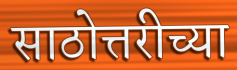
साठोत्तरीच्या